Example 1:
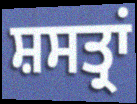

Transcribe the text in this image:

ਸ਼ਸਤ੍ਰਾਂ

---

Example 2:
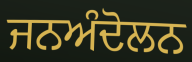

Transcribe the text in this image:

ਜਨਅੰਦੋਲਨ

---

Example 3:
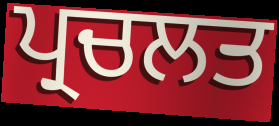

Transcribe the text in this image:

ਪ੍ਰਚਲਤ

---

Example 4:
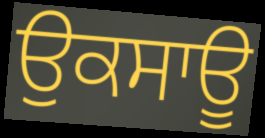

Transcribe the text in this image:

ਉਕਸਾਊ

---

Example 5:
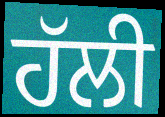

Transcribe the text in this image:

ਹੱਲੀ